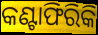
କଣ୍ଟାଫିରିକି